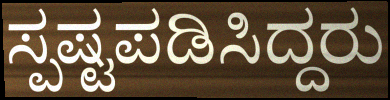
ಸ್ಪಷ್ಟಪಡಿಸಿದ್ದರು